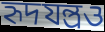
হৃদযন্ত্রও